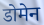
डोमेन